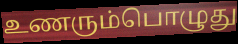
உணரும்பொழுது